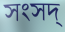
সংসদ্